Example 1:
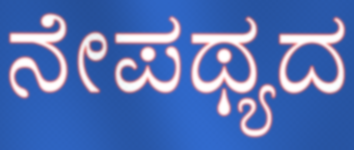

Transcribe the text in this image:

ನೇಪಥ್ಯದ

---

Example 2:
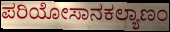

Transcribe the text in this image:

ಪರಿಯೋಸಾನಕಲ್ಯಾಣಂ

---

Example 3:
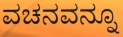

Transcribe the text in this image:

ವಚನವನ್ನೂ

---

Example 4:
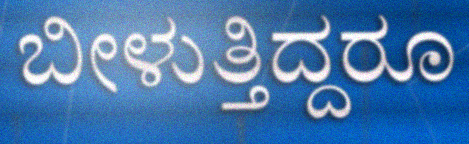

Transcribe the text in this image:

ಬೀಳುತ್ತಿದ್ದರೂ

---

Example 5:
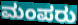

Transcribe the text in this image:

ಮಂಪರು